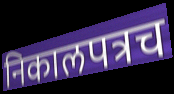
निकालपत्रच